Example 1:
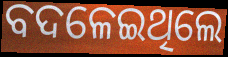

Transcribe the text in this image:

ବଦଳେଇଥିଲେ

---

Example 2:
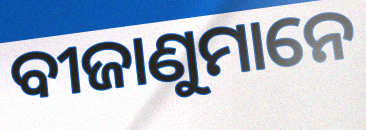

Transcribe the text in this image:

ବୀଜାଣୁମାନେ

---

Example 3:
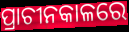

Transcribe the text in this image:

ପ୍ରାଚୀନକାଳରେ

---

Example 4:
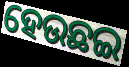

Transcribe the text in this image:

ହେଉଛଇ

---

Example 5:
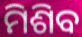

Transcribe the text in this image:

ମିଶିବ